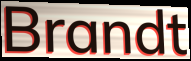
Brandt